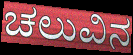
ಚಲುವಿನ